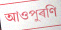
আওপুৰণি